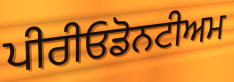
ਪੀਰੀਓਡੋਨਟੀਅਮ